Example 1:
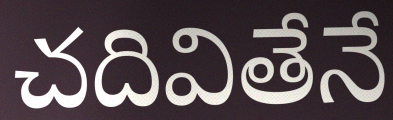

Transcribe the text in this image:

చదివితేనే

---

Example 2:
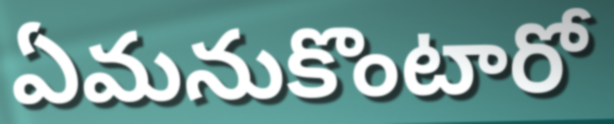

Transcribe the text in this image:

ఏమనుకొంటారో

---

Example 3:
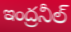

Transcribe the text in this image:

ఇంద్రనీల్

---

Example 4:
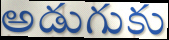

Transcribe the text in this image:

అడుగుకు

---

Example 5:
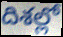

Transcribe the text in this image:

దిశల్లో